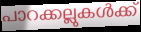
പാറക്കല്ലുകൾക്ക്